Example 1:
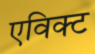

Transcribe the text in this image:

एविक्ट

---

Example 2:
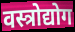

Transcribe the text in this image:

वस्त्रोद्योग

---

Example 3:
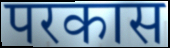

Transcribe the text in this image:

परकास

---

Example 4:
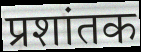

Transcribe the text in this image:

प्रशांतक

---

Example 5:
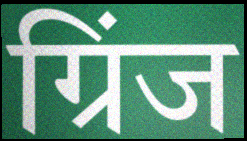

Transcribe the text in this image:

ग्रिंज